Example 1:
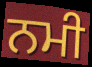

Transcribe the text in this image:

ਨਮੀ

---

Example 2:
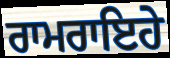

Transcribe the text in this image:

ਰਾਮਰਾਇਹੇ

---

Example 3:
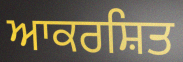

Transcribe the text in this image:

ਆਕਰਸ਼ਿਤ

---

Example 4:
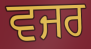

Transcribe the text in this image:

ਵਜਰ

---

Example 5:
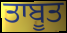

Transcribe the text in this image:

ਤਾਬੂਤ